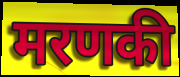
मरणकी